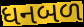
ધનબળ